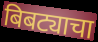
बिबट्याचा